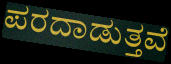
ಪರದಾಡುತ್ತವೆ